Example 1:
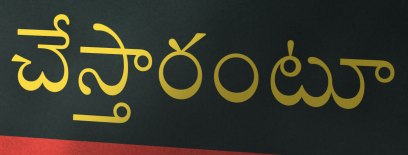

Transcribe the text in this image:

చేస్తారంటూ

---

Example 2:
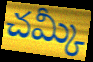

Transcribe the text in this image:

చమ్కీ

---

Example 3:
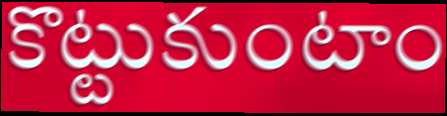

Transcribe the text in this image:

కొట్టుకుంటాం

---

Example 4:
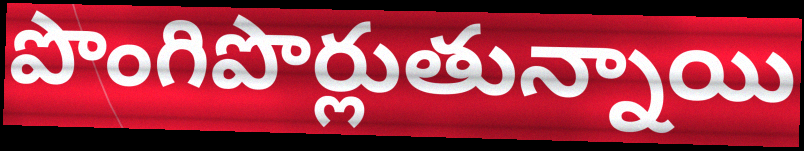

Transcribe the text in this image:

పొంగిపొర్లుతున్నాయి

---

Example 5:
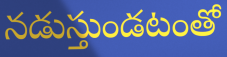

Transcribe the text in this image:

నడుస్తుండటంతో